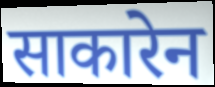
साकारेन